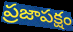
ప్రజాపక్షం